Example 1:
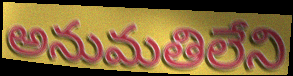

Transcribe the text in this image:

అనుమతిలేని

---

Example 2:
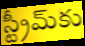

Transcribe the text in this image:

స్ట్రీమ్‌కు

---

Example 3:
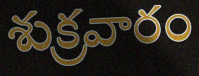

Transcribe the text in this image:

శుక్రవారం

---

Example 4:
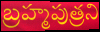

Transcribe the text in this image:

బ్రహ్మపుత్రని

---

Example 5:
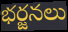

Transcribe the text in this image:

భర్జనలు